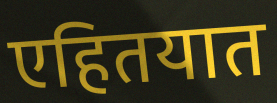
एहितयात